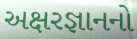
અક્ષરજ્ઞાનનો